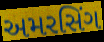
અમરસિંગ